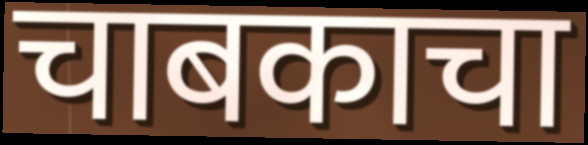
चाबकाचा